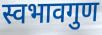
स्वभावगुण